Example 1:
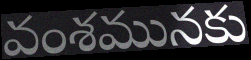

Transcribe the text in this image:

వంశమునకు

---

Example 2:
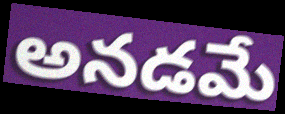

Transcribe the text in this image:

అనడమే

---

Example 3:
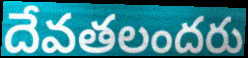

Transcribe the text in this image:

దేవతలందరు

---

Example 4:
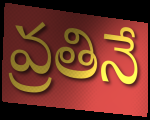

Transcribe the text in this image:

వ్రతినే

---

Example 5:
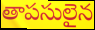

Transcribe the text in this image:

తాపసులైన